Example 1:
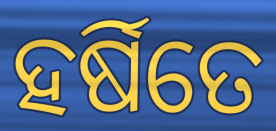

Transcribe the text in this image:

ହର୍ଷିତେ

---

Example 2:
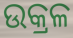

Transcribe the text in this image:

ଉକ୍ରଳ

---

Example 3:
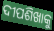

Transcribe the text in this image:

ଦୀପଶିଖାକୁ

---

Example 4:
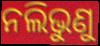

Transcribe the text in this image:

ନଲିଭୁଣୁ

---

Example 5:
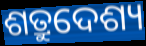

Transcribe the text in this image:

ଶତ୍ରୁଦେଶ୍ୟ